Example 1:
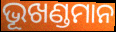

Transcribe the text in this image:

ଭୂଖଣ୍ଡମାନ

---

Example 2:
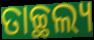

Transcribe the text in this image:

ତାଚ୍ଛଲ୍ଯ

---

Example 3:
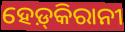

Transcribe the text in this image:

ହେଡ଼୍‌କିରାନୀ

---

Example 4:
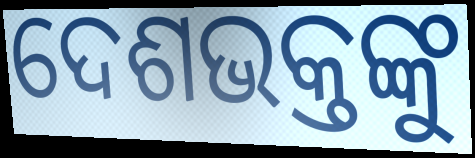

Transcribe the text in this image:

ଦେଶଭକ୍ତଙ୍କୁ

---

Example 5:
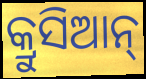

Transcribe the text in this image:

କ୍ରୁସିଆନ୍